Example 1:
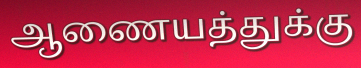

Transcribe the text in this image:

ஆணையத்துக்கு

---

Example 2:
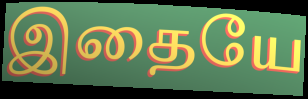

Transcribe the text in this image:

இதையே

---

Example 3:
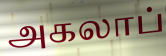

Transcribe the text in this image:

அகலாப்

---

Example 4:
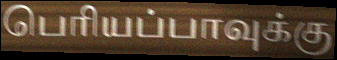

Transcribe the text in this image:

பெரியப்பாவுக்கு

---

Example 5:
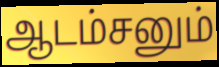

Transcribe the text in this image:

ஆடம்சனும்